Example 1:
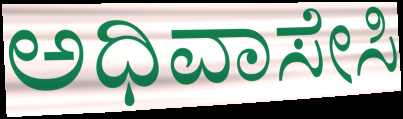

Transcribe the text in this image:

ಅಧಿವಾಸೇಸಿ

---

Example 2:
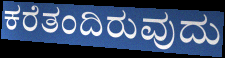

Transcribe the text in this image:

ಕರೆತಂದಿರುವುದು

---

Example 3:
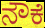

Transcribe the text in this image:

ನೌಕೆ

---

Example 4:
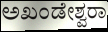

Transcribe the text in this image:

ಅಖಂಡೇಶ್ವರಾ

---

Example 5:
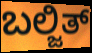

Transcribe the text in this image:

ಬಲ್ಜಿತ್